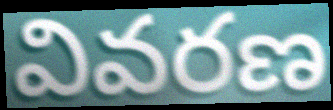
వివరణ